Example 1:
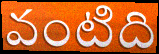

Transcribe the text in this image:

వంటిది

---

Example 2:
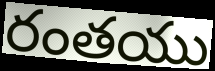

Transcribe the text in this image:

రంతయు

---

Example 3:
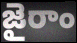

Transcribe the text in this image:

జైరాం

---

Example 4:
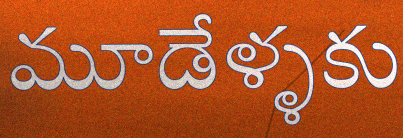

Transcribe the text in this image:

మూడేళ్ళకు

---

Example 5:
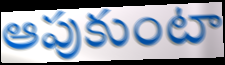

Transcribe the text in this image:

ఆపుకుంటా